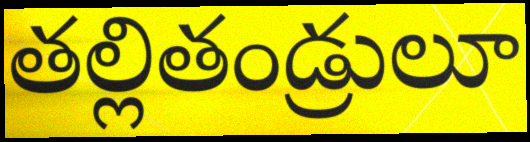
తల్లితండ్రులూ